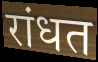
रांधत